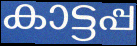
കാട്ടപ്പ